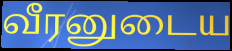
வீரனுடைய